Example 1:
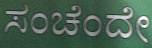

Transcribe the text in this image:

ಸಂಚೆಂದೇ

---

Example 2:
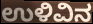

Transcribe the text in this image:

ಉಳಿವಿನ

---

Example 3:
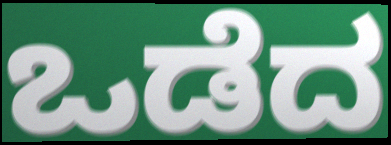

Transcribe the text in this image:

ಒಡೆದ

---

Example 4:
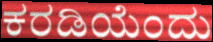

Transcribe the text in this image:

ಕರಡಿಯೆಂದು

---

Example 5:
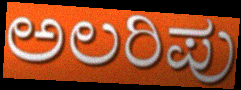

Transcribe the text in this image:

ಅಲರಿಪು